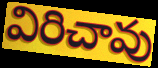
విరిచావు